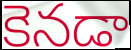
కెనడా